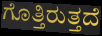
ಗೊತ್ತಿರುತ್ತದೆ